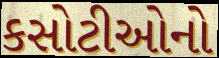
કસોટીઓનો